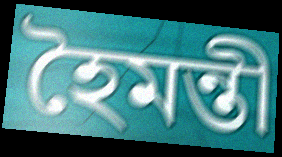
হৈমন্তী